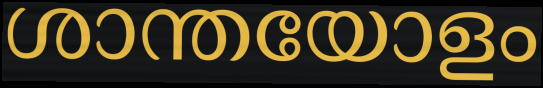
ശാന്തയോളം